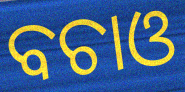
ବଚାଓ